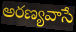
అరణ్యవాసే